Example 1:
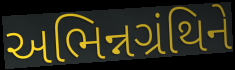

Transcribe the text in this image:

અભિન્નગ્રંથિને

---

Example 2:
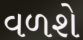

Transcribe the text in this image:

વળશે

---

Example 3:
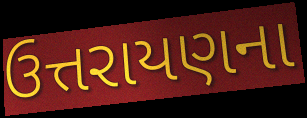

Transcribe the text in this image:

ઉત્તરાયણના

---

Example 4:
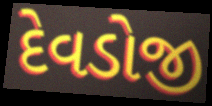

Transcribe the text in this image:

દેવડોજી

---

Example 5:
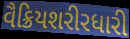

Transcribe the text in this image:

વૈક્રિયશરીરધારી